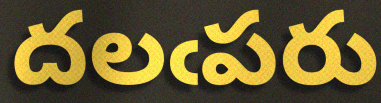
దలఁపరు